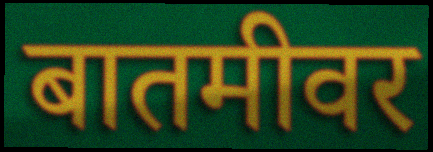
बातमीवर